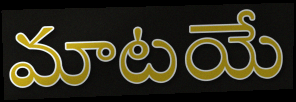
మాటయే